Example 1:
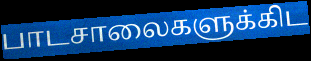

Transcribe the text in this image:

பாடசாலைகளுக்கிட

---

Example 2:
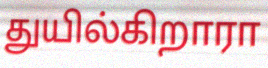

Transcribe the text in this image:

துயில்கிறாரா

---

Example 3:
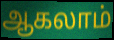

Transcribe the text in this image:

ஆகலாம்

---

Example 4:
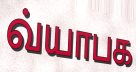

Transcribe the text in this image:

வ்யாபக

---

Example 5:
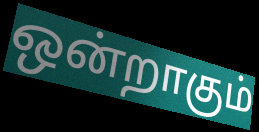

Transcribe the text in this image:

ஒன்றாகும்